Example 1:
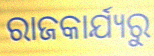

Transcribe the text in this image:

ରାଜକାର୍ଯ୍ୟରୁ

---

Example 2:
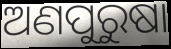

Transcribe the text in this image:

ଅଣପୁରୁଷା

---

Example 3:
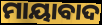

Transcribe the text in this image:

ମାୟାବାଦ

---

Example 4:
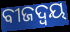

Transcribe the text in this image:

ବୀଜଦ୍ଵୟ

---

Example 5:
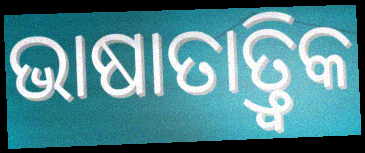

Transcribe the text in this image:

ଭାଷାତାତ୍ତ୍ୱିକ